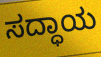
ಸದ್ಧಾಯ